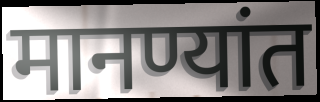
मानण्यांत